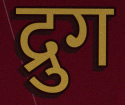
द्रुग